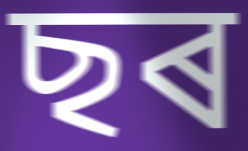
ছৰ